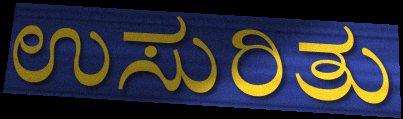
ಉಸುರಿತು